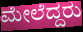
ಮೇಲೆದ್ದರು